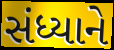
સંધ્યાને